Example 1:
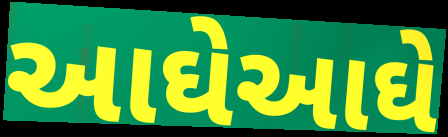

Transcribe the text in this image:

આઘેઆઘે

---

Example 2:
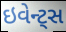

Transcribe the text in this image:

ઇવેન્ટ્સ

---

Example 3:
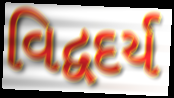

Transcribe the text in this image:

વિદ્વદર્ય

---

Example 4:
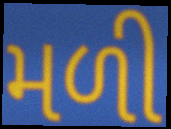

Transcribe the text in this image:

મળી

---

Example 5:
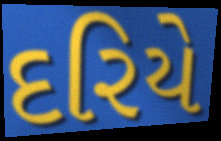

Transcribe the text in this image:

દરિયે